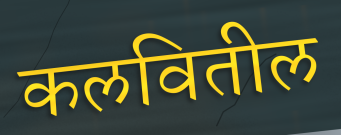
कलवितील